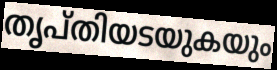
തൃപ്തിയടയുകയും